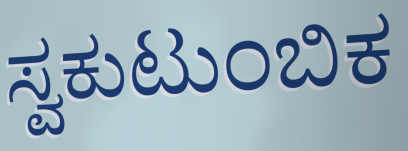
ಸ್ವಕುಟುಂಬಿಕ